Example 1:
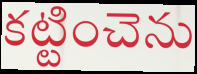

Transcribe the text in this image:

కట్టించెను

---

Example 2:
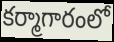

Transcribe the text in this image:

కర్మాగారంలో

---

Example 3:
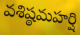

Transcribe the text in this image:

వశిష్ఠమహర్షి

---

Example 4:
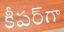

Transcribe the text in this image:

కీపర్‌గా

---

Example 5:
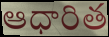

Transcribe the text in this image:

ఆధారిత